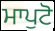
ਮਾਪੁਟੋ